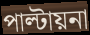
পাল্টায়না